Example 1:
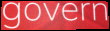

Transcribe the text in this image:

govern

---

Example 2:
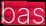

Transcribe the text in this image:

bas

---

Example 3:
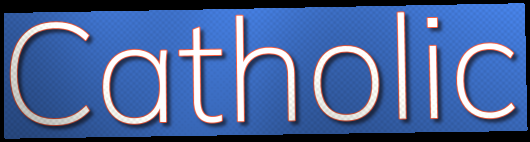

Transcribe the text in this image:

Catholic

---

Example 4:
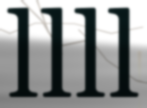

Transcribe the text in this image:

llll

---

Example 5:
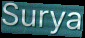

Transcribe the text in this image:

Surya